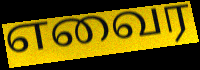
எவைர